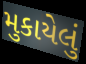
મુકાયેલું